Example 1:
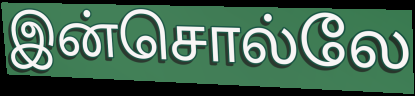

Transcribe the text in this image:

இன்சொல்லே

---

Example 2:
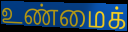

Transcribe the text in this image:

உண்மைக்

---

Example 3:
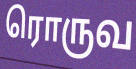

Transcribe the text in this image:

ரொருவ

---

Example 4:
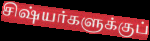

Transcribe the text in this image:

சிஷ்யர்களுக்குப்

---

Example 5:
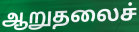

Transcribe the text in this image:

ஆறுதலைச்